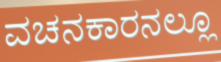
ವಚನಕಾರನಲ್ಲೂ